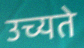
उच्यते